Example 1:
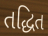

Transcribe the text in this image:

તદ્ધિત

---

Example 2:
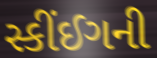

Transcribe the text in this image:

સ્કીંઈગની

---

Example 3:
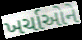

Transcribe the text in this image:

ખર્ચાઓને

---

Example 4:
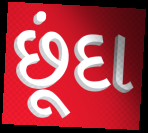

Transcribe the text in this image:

છૂંદા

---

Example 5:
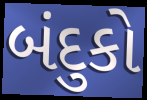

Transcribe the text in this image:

બંદુકો